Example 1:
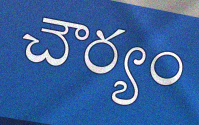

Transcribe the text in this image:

చౌర్యం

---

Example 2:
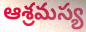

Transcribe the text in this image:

ఆశ్రమస్య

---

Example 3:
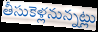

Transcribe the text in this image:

తీసుకెళ్లనున్నట్లు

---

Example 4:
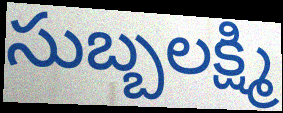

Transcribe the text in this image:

సుబ్బలక్ష్మి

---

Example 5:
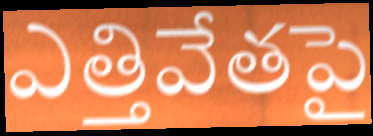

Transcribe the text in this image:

ఎత్తివేతపై